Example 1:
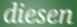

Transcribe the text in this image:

diesen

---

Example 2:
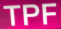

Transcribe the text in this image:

TPF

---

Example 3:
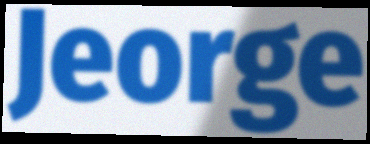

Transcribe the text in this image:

Jeorge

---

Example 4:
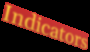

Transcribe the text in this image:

Indicators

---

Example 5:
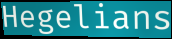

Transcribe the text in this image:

Hegelians